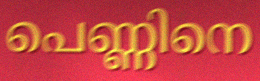
പെണ്ണിനെ